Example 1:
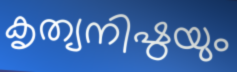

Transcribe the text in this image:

കൃത്യനിഷ്ഠയും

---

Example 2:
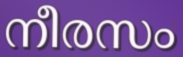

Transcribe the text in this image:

നീരസം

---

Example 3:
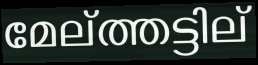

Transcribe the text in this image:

മേല്ത്തട്ടില്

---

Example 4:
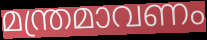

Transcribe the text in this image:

മന്ത്രമാവണം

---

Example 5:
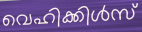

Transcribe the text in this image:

വെഹിക്കിൾസ്